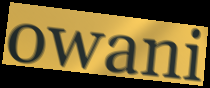
owani